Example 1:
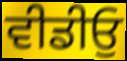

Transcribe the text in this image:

ਵੀਡੀਓੁ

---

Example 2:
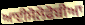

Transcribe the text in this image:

ਆਈਸੋਲੋਫੋਬੀਆ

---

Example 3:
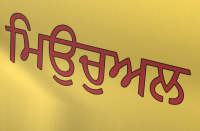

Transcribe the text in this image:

ਮਿਉਚੁਅਲ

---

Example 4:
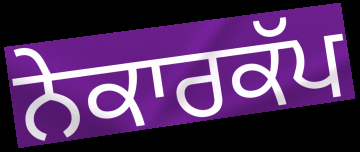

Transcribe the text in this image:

ਨੇਕਾਰਕੱਪ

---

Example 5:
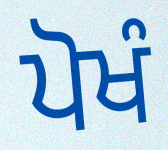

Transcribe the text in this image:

ਪੋਖੰ